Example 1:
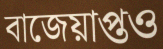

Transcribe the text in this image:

বাজেয়াপ্তও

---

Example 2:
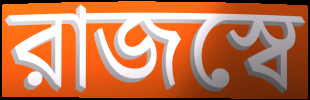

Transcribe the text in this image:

রাজস্বে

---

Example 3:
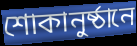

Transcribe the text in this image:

শোকানুষ্ঠানে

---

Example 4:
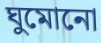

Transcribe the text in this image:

ঘুমোনো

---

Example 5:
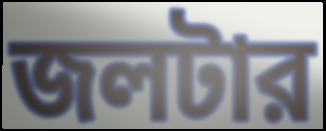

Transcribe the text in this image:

জলটার